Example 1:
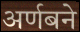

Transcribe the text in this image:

अर्णबने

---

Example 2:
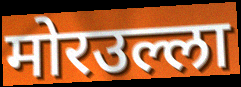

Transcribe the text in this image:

मोरउल्ला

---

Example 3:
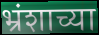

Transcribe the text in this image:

भ्रंशाच्या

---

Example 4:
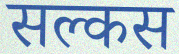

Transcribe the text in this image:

सल्कस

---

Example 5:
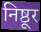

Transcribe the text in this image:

निष्ठूर